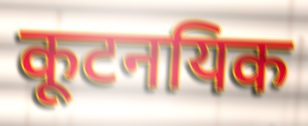
कूटनयिक